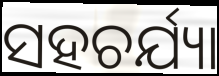
ସହଚର୍ଯ୍ୟା